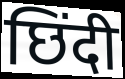
छिंदी